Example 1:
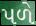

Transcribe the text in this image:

પળે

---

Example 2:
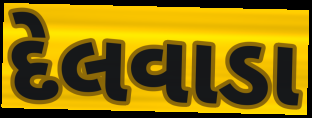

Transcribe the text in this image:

દેલવાડા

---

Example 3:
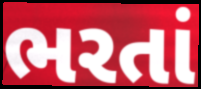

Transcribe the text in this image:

ભરતાં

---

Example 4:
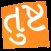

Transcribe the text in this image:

તુષ્ટ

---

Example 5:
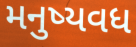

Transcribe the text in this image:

મનુષ્યવધ